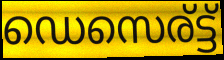
ഡെസെര്ട്ട്